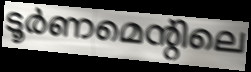
ടൂർണമെന്റിലെ